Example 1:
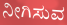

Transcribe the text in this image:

ನೀಗಿಸುವ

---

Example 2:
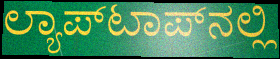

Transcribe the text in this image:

ಲ್ಯಾಪ್‌ಟಾಪ್‌ನಲ್ಲಿ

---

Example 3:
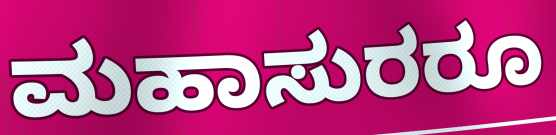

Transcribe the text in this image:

ಮಹಾಸುರರೂ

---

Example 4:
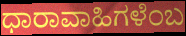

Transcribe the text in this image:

ಧಾರಾವಾಹಿಗಳೆಂಬ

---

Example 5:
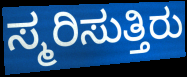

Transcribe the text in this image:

ಸ್ಮರಿಸುತ್ತಿರು